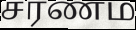
சரணம